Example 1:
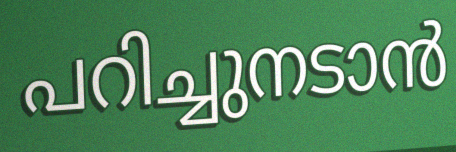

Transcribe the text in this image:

പറിച്ചുനടാൻ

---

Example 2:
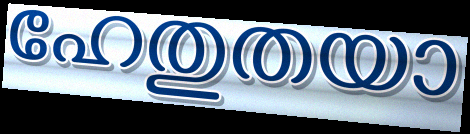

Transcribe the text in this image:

ഹേതുതയാ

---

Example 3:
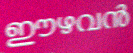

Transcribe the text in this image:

ഈഴവൻ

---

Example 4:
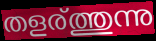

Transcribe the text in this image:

തളര്ത്തുന്നു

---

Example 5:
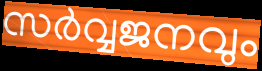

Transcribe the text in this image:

സർവ്വജനവും